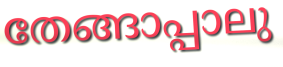
തേങ്ങാപ്പാലു